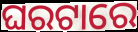
ଘରଟାରେ